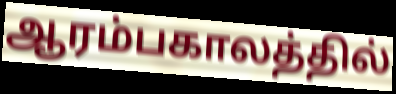
ஆரம்பகாலத்தில்